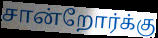
சான்றோர்க்கு